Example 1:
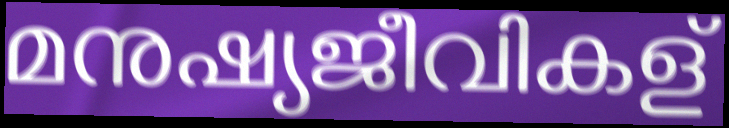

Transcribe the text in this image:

മനുഷ്യജീവികള്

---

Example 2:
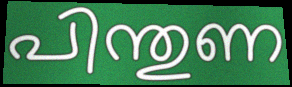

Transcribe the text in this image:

പിന്തുണ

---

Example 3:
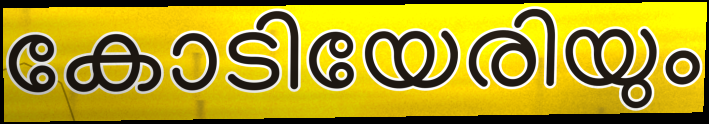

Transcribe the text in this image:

കോടിയേരിയും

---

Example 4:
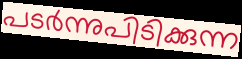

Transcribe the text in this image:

പടർന്നുപിടിക്കുന്ന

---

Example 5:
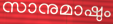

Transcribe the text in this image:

സാനുമാഷും